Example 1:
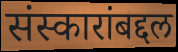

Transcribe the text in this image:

संस्कारांबद्दल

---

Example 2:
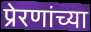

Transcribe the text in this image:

प्रेरणांच्या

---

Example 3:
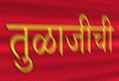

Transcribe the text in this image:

तुळाजीची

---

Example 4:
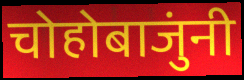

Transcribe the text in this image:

चोहोबाजुंनी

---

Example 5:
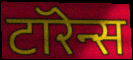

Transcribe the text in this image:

टॉरेन्स